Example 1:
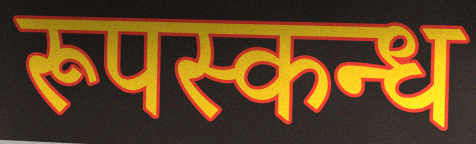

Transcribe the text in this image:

रूपस्कन्ध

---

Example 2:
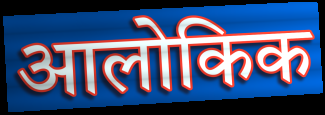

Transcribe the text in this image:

आलोकिक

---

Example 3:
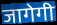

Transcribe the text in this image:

जागेगी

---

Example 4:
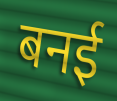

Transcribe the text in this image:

बनई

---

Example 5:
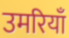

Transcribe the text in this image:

उमरियाँ